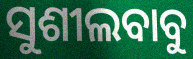
ସୁଶୀଲବାବୁ